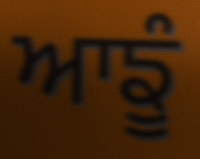
ਆਙੂੰ